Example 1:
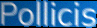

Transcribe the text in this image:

Pollicis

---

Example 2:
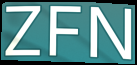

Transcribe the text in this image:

ZFN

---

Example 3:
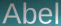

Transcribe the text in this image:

Abel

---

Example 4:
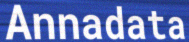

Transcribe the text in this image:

Annadata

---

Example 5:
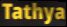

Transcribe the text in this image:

Tathya